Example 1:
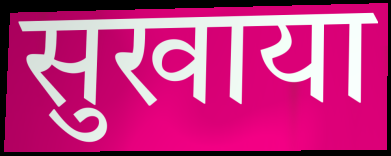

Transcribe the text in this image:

सुखाया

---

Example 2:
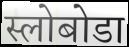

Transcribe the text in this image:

स्लोबोडा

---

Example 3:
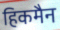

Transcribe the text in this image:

हिकमैन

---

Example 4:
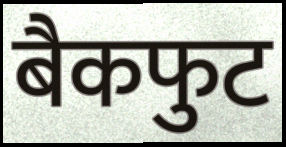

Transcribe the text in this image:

बैकफुट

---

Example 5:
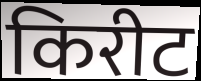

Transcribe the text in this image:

किरीट